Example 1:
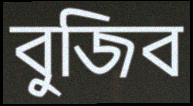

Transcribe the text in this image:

বুজিব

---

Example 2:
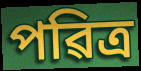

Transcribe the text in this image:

পৱিত্ৰ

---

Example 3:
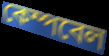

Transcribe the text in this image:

কেম্পবেল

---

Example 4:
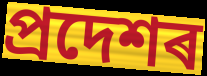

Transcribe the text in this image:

প্ৰদেশৰ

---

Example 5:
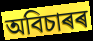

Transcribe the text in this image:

অবিচাৰৰ